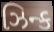
ઝિન્ક